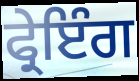
ਫ੍ਰੇਇੰਗ